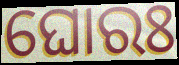
ଘୋରଃ